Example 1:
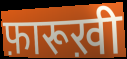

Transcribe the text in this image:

फ़ारूख़ी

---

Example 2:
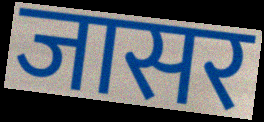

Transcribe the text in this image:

जासर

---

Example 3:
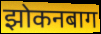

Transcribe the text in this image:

झोकनबाग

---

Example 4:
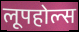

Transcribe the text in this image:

लूपहोल्स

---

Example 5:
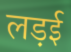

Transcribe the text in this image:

लड़ई